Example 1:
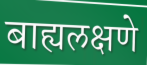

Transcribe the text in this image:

बाह्यलक्षणे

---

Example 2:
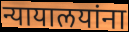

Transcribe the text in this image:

न्यायालयांना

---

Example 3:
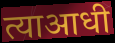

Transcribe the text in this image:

त्याआधी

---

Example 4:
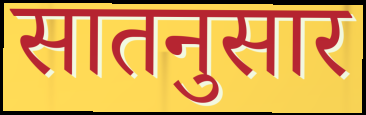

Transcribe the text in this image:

सातनुसार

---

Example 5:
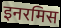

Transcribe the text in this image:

इनरमिस